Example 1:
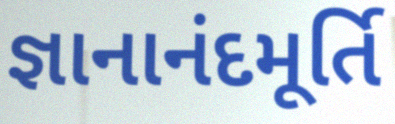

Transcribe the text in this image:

જ્ઞાનાનંદમૂર્તિ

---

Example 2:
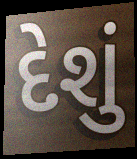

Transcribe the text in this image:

દેશું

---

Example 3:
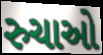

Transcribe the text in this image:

રુચાઓ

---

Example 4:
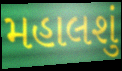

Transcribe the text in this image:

મહાલશું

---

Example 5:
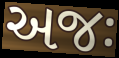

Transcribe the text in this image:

અજઃ